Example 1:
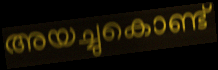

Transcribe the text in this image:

അയച്ചുകൊണ്ട്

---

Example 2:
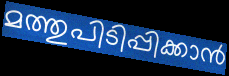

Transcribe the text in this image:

മത്തുപിടിപ്പിക്കാൻ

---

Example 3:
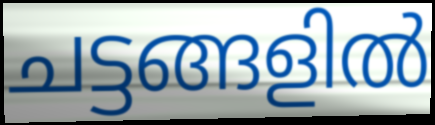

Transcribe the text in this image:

ചട്ടങ്ങളിൽ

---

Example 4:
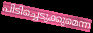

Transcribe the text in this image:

പിടിച്ചെടുക്കുമെന്ന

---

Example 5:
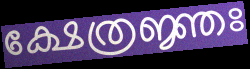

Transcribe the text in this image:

ക്ഷേത്രജ്ഞഃ